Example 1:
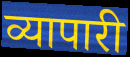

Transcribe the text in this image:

व्यापारी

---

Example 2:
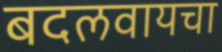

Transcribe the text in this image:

बदलवायचा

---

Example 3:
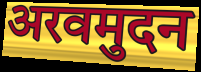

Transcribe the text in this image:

अरवमुदन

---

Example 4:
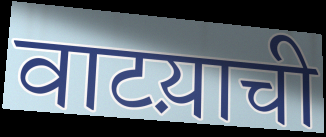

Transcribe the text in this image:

वाटय़ाची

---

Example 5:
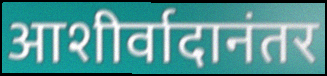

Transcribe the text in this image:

आशीर्वादानंतर